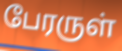
பேரருள்